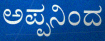
ಅಪ್ಪನಿಂದ